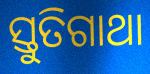
ସ୍ତୁତିଗାଥା